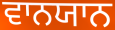
ਵਾਨਯਾਨ